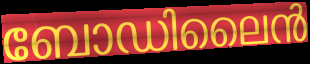
ബോഡിലൈൻ